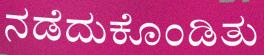
ನಡೆದುಕೊಂಡಿತು